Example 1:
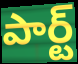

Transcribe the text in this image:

పార్ట్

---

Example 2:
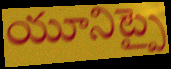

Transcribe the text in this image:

యూనిట్పై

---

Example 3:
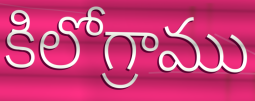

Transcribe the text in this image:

కిలోగ్రాము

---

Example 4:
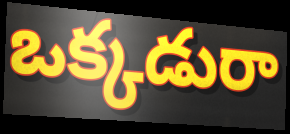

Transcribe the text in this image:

ఒక్కడురా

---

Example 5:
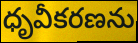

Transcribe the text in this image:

ధృవీకరణను